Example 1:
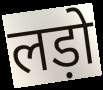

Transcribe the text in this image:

लड़ो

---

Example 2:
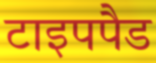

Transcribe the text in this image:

टाइपपैड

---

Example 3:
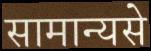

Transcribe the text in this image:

सामान्यसे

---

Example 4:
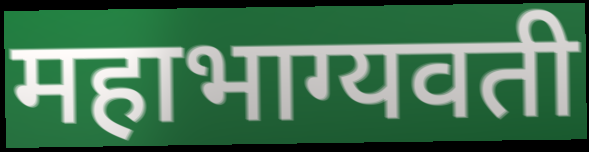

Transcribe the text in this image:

महाभाग्यवती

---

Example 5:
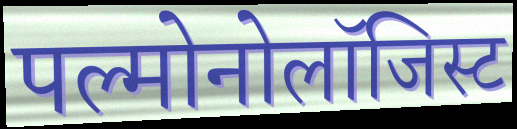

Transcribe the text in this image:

पल्मोनोलॉजिस्ट